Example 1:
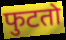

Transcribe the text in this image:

फुटतो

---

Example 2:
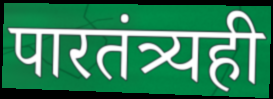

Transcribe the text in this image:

पारतंत्र्यही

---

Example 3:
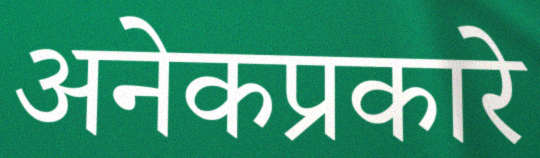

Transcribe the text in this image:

अनेकप्रकारे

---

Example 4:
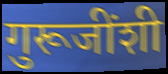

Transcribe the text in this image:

गुरूजींशी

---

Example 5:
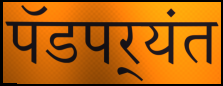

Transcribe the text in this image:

पॅडपर्यंत